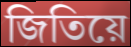
জিতিয়ে